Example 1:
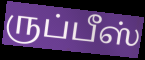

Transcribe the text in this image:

ருப்பீஸ்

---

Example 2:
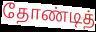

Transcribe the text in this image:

தோண்டித்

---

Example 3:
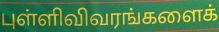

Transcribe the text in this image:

புள்ளிவிவரங்களைக்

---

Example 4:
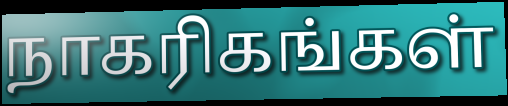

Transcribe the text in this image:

நாகரிகங்கள்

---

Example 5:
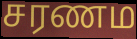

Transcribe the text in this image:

சரணம